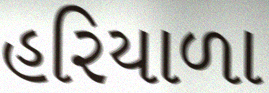
હરિયાળા